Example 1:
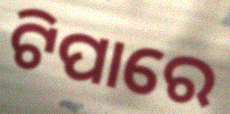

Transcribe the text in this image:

ଟିପାରେ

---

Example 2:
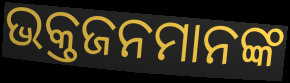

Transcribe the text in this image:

ଭକ୍ତଜନମାନଙ୍କ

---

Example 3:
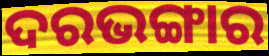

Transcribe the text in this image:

ଦରଭଙ୍ଗାର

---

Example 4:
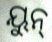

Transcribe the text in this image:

ୟୁନ୍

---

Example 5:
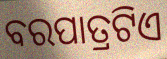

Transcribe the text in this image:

ବରପାତ୍ରଟିଏ